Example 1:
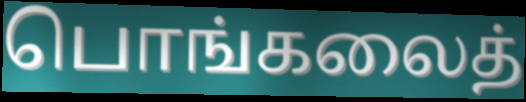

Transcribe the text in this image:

பொங்கலைத்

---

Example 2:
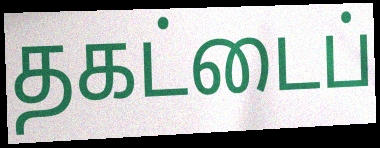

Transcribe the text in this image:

தகட்டைப்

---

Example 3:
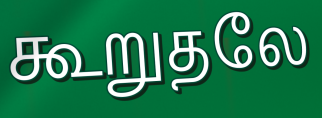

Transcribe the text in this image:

கூறுதலே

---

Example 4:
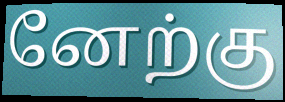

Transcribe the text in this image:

னேற்கு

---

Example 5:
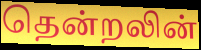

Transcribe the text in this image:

தென்றலின்